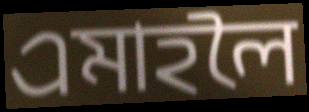
এমাহলৈ